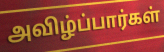
அவிழ்ப்பார்கள்